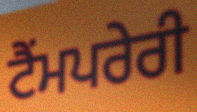
ਟੈਂਮਪਰੇਰੀ